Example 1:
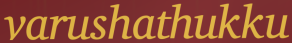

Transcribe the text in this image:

varushathukku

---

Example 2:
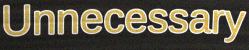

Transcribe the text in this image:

Unnecessary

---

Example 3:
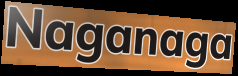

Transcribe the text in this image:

Naganaga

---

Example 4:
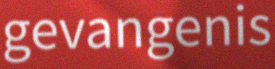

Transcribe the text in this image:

gevangenis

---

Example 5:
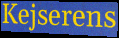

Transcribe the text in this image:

Kejserens